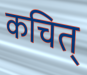
कचित्